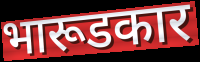
भारूडकार